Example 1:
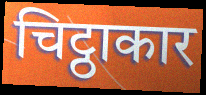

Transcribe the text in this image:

चिट्ठाकार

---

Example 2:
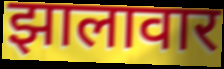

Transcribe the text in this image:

झालावार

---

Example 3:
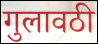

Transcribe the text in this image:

गुलावठी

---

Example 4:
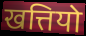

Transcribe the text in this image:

खत्तियो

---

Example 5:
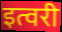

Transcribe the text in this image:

इत्वरी